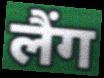
लैंग